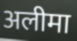
अलीमा